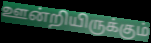
ஊன்றியிருக்கும்